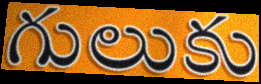
గులుకు